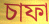
চাফা